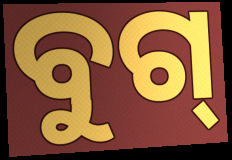
ବୁଗ୍